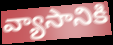
వ్యాసానికి